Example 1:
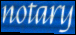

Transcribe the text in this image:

notary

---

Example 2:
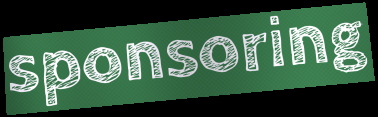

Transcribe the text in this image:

sponsoring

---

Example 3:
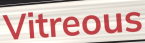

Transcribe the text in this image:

Vitreous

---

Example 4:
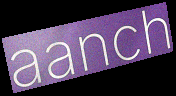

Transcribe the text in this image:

aanch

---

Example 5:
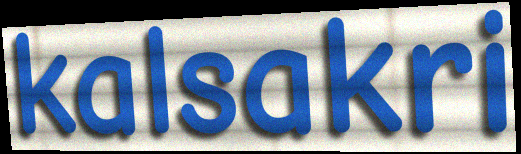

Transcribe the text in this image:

kalsakri